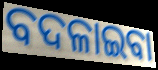
ବଦଳାଇବା